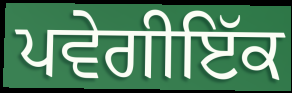
ਪਵੇਗੀਇੱਕ